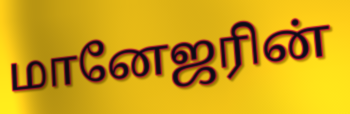
மானேஜரின்